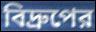
বিদ্রুপের